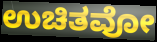
ಉಚಿತವೋ